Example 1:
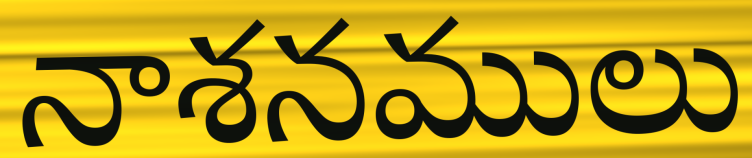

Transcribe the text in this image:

నాశనములు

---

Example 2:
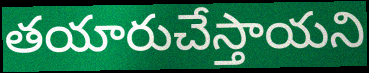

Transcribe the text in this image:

తయారుచేస్తాయని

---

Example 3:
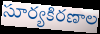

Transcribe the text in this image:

సూర్యకిరణాల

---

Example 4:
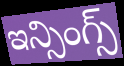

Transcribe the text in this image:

ఇన్సింగ్స్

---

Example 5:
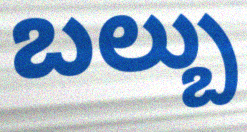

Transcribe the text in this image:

బల్బు